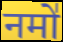
नमो॑